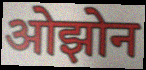
ओझोन